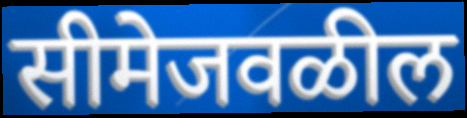
सीमेजवळील